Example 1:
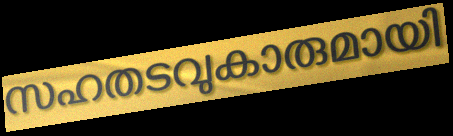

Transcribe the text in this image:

സഹതടവുകാരുമായി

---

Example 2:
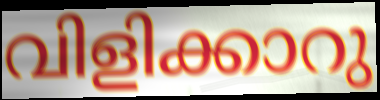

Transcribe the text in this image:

വിളിക്കാറു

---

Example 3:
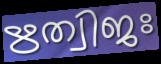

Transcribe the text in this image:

ഋത്വിജഃ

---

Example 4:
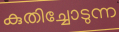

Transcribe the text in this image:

കുതിച്ചോടുന്ന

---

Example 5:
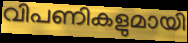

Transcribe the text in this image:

വിപണികളുമായി